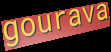
gourava